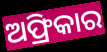
ଅଫ୍ରିକାର